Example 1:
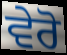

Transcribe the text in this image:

ਵੇਰੋ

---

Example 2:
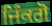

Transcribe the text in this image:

ਜਿੰਕਗੋ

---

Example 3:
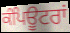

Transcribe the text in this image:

ਕੰਪਿਊਟਰਾਂ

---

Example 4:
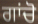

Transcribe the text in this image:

ਗਾਂਚੋ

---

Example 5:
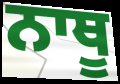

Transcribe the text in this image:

ਨਾਥੂ